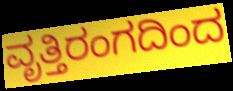
ವೃತ್ತಿರಂಗದಿಂದ